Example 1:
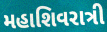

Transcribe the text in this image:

મહાશિવરાત્રી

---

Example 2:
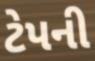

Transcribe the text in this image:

ટેપની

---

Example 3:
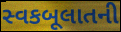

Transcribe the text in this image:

સ્વકબૂલાતની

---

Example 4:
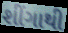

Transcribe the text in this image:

શીંગાથી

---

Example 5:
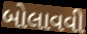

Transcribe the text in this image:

બોલાવવી